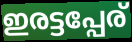
ഇരട്ടപ്പേര്